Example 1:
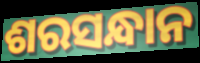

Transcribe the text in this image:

ଶରସନ୍ଧାନ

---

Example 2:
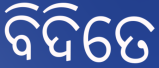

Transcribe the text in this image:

ବିଦିତେ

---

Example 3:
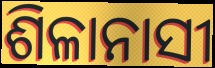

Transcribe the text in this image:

ଶିଳାନାସୀ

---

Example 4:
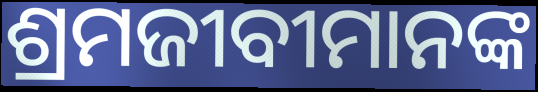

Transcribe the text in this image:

ଶ୍ରମଜୀବୀମାନଙ୍କ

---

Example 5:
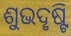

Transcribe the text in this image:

ଶୁଭଦୃଷ୍ଟି